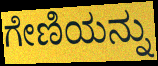
ಗೇಣಿಯನ್ನು